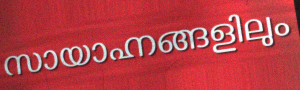
സായാഹ്നങ്ങളിലും